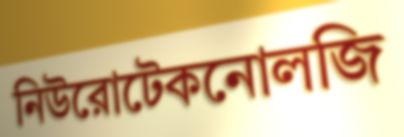
নিউরোটেকনোলজি